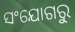
ସଂଯୋଗରୁ